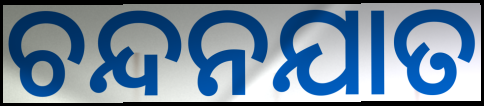
ଚନ୍ଦନଯାତ